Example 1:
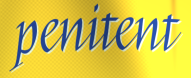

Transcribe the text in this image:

penitent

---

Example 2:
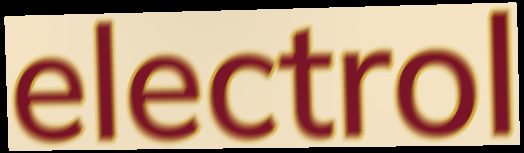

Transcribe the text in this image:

electrol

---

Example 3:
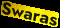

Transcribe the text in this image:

Swaras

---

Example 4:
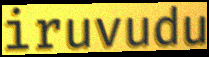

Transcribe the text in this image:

iruvudu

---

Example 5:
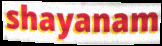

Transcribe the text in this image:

shayanam